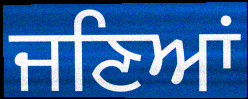
ਜਣਿਆਂ